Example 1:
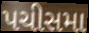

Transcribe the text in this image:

પચીસમા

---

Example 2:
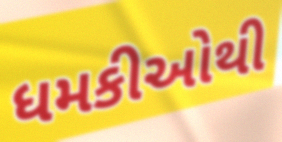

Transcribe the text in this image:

ધમકીઓથી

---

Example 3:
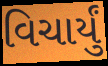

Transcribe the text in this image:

વિચાર્યું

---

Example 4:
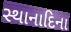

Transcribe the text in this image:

સ્થાનાદિના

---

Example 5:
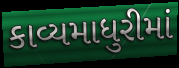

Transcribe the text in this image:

કાવ્યમાધુરીમાં